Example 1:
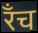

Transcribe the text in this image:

रँच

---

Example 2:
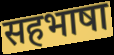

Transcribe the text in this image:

सहभाषा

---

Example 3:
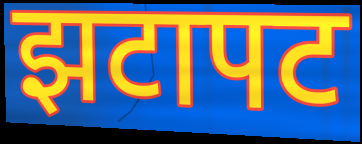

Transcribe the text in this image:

झटापट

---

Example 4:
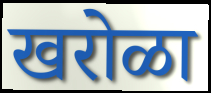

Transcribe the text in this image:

खरोळा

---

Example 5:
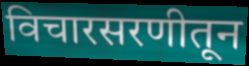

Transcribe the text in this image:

विचारसरणीतून